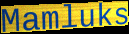
Mamluks